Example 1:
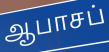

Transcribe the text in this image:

ஆபாசப்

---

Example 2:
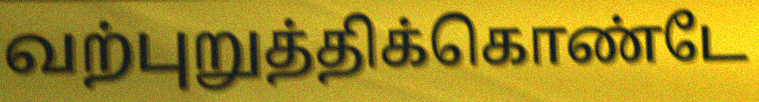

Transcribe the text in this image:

வற்புறுத்திக்கொண்டே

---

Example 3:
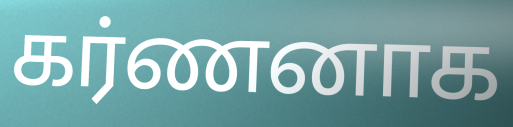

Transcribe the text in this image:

கர்ணனாக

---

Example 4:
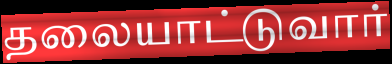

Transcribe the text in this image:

தலையாட்டுவார்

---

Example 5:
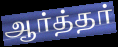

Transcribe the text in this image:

ஆர்த்தர்